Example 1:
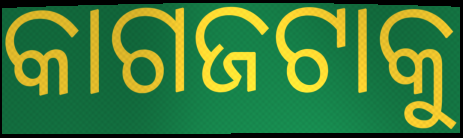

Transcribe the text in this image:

କାଗଜଟାକୁ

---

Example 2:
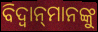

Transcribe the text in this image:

ବିଦ୍ଵାନ୍‌ମାନଙ୍କୁ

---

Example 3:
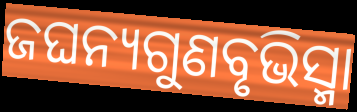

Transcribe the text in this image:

ଜଘନ୍ୟଗୁଣବୃଭିସ୍ମା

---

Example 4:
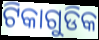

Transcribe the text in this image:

ଟିକାଗୁଡିକ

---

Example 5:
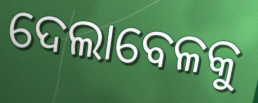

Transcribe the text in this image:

ଦେଲାବେଳକୁ